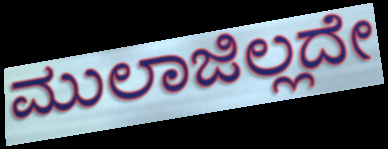
ಮುಲಾಜಿಲ್ಲದೇ